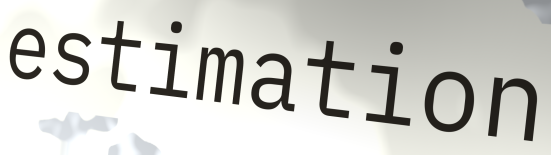
estimation